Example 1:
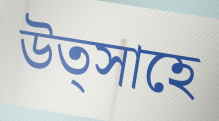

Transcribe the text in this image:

উত্সাহে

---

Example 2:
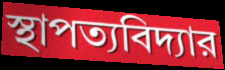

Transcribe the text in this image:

স্থাপত্যবিদ্যার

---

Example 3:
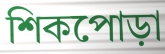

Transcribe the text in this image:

শিকপোড়া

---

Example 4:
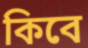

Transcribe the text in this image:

কিবে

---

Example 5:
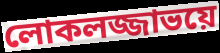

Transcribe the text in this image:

লোকলজ্জাভয়ে